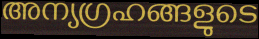
അന്യഗ്രഹങ്ങളുടെ